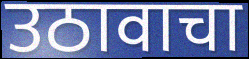
उठावाचा